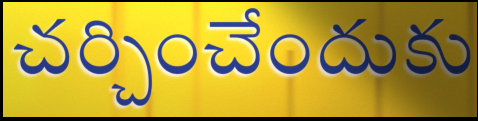
చర్చించేందుకు